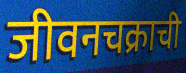
जीवनचक्राची